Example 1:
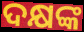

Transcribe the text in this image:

ଦକ୍ଷଙ୍କ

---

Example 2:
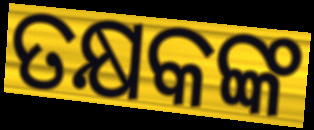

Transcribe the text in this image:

ତକ୍ଷକଙ୍କ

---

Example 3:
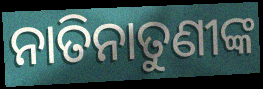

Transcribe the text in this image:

ନାତିନାତୁଣୀଙ୍କ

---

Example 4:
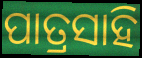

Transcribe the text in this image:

ପାତ୍ରସାହି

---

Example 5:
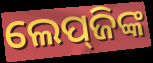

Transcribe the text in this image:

ଲେପ୍‌ଜିଙ୍କ